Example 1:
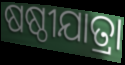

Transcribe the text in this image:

ଷଷ୍ଠୀଯାତ୍ରା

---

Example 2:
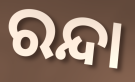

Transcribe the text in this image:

ରନ୍ଦା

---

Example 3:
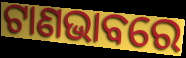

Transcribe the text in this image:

ଟାଣଭାବରେ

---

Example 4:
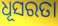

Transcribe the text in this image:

ଧୂସରତା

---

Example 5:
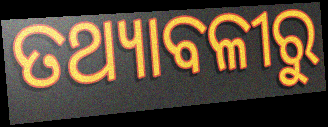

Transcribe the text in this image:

ତଥ୍ୟାବଳୀରୁ